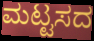
ಮಟ್ಟಸದ